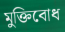
মুক্তিবোধ